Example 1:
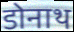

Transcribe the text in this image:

डोनाथ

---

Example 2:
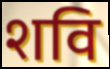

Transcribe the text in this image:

शवि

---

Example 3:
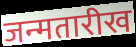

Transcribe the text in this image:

जन्मतारीख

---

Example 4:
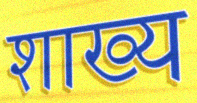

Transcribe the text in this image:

शाख्य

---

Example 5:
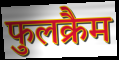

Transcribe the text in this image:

फुलक्रैम